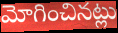
మోగించినట్లు